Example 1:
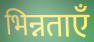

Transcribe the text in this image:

भिन्नताएँ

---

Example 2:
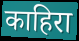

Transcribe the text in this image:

काहिरा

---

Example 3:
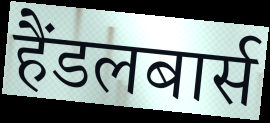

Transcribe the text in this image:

हैंडलबार्स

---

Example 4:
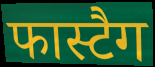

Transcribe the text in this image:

फास्टैग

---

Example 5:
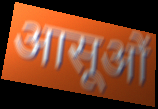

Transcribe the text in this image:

आसूओं